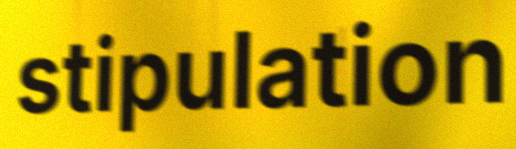
stipulation